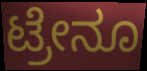
ಟ್ರೇನೂ